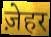
ज़ेहर